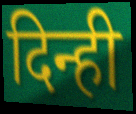
दिन्ही